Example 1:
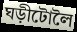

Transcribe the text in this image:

ঘড়ীটোলৈ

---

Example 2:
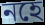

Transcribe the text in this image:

নহে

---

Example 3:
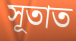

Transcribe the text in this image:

সূতাত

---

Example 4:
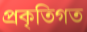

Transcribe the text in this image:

প্ৰকৃতিগত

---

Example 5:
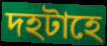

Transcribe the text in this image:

দহটাহে